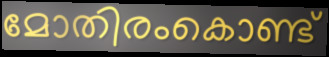
മോതിരംകൊണ്ട്